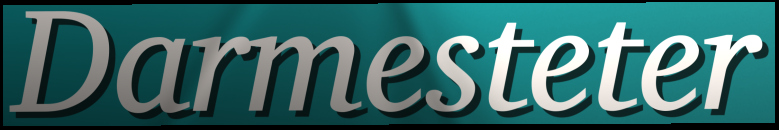
Darmesteter